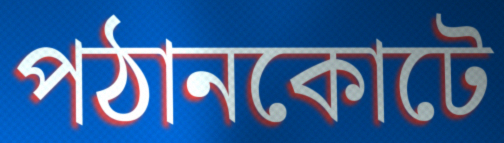
পঠানকোটে